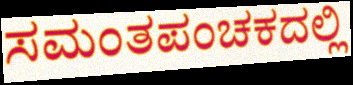
ಸಮಂತಪಂಚಕದಲ್ಲಿ